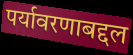
पर्यावरणाबद्दल